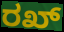
ರಖ್